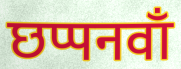
छप्पनवाँ